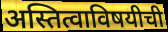
अस्तित्वाविषयीची